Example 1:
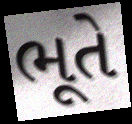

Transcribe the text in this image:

ભૂતે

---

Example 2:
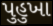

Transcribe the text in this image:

પુહુખા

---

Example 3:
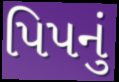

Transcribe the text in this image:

પિપનું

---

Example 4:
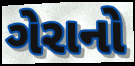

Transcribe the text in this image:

ગેરાનો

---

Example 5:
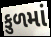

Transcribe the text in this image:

કુળમાં